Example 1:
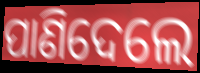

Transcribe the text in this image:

ପାଣିଦେଲେ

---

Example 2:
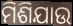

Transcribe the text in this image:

ମିଶିଯାଉ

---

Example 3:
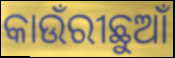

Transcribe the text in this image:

କାଉଁରୀଛୁଆଁ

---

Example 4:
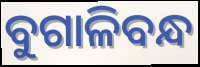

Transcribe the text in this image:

ବୁଗାଳିବନ୍ଧ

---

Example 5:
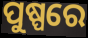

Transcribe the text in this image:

ପୁଷ୍ପରେ